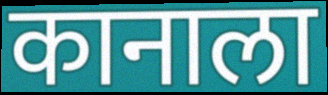
कानाला